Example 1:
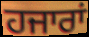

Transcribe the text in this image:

ਹਜਾਰਾਂ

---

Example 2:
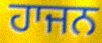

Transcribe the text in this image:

ਹਾਜਨ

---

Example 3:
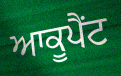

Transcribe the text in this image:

ਆਕੂਪੈਂਟ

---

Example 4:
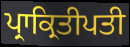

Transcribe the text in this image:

ਪ੍ਰਾਕ੍ਰਿਤੀਪਤੀ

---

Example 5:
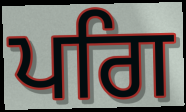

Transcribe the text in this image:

ਪਗਿ